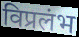
विप्रलंभ